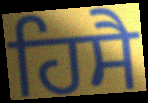
ਹਿਸੈ